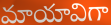
మాయావిగా